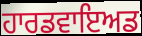
ਹਾਰਡਵਾਇਅਡ